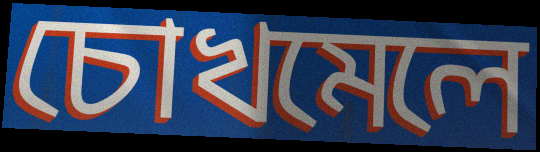
চোখমেলে